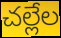
చల్లేల